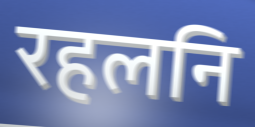
रहलनि